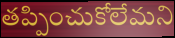
తప్పించుకోలేమని